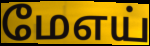
மேஎய்